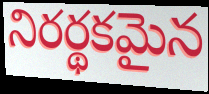
నిరర్థకమైన